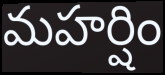
మహర్షిం